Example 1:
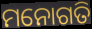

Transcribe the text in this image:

ମନୋଗତି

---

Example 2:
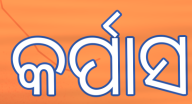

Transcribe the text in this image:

କର୍ପାସ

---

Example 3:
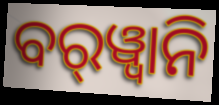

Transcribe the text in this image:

ବର୍‍ୱ୍ୱାନି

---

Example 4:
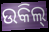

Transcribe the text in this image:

ଉକିଲ୍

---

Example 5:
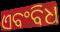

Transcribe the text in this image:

ଏବଂବିଧ